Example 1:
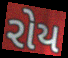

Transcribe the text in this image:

રોય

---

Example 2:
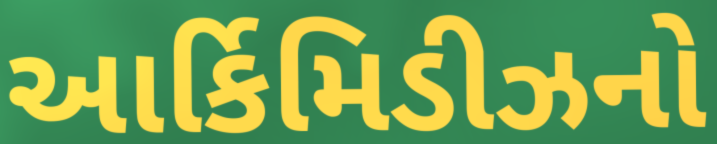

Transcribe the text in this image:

આર્કિમિડીઝનો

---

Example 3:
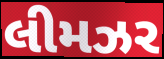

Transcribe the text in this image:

લીમઝર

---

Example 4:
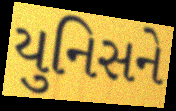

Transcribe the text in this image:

યુનિસને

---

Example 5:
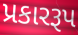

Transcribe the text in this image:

પ્રકારરૂપ